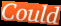
Could